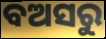
ବଅସରୁ